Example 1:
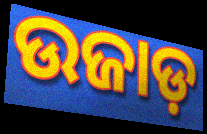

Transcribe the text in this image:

ଉଜାଡ଼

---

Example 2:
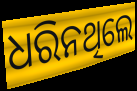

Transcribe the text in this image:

ଧରିନଥିଲେ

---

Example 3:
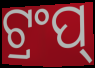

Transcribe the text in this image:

ଟ୍ରଂପ୍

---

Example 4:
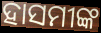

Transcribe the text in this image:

ହାସମୀଙ୍କ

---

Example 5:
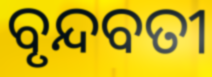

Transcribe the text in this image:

ବୃନ୍ଦବତୀ